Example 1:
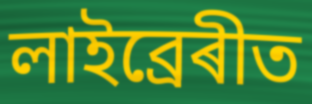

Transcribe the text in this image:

লাইব্ৰেৰীত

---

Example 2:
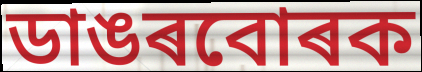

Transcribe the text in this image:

ডাঙৰবোৰক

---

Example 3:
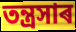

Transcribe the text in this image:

তন্ত্ৰসাৰ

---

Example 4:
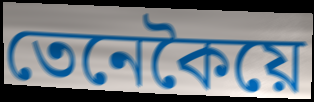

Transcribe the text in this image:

তেনেকৈয়ে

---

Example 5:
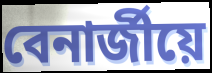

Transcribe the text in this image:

বেনাৰ্জীয়ে